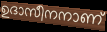
ഉദാസീനനാണ്